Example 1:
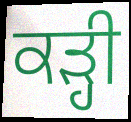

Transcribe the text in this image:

ਕੜ੍ਹੀ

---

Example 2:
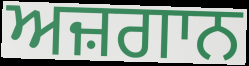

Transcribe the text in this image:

ਅਜ਼ਗਾਨ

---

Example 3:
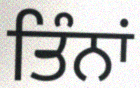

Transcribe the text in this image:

ਤਿੰਨਾਂ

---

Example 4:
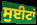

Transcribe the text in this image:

ਸੁਈਟਾਂ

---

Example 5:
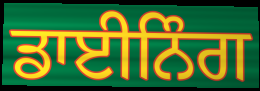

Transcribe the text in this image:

ਡਾਈਨਿੰਗ